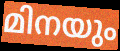
മിനയും